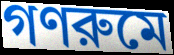
গণরুমে